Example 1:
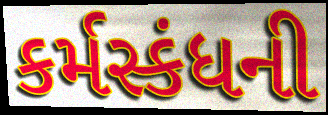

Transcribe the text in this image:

કર્મસ્કંધની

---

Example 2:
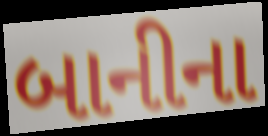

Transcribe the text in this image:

બાનીના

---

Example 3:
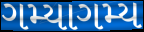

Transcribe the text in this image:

ગમ્યાગમ્ય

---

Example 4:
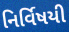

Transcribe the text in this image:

નિર્વિષયી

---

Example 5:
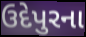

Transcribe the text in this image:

ઉદેપુરના